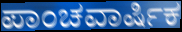
ಪಾಂಚವಾರ್ಷಿಕ